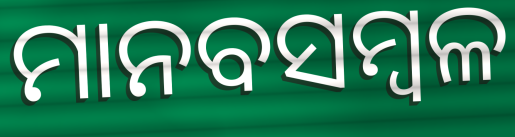
ମାନବସମ୍ବଳ